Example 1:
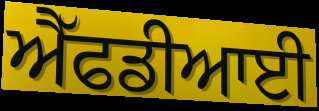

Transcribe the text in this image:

ਐੱਫਡੀਆਈ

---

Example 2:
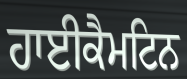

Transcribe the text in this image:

ਹਾਈਕੈਮਟਿਨ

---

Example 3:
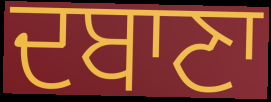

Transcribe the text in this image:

ਦਬਾਣਾ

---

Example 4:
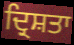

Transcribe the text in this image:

ਦ੍ਰਿਸ਼ਤਾ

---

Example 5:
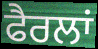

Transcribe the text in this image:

ਫੈਰਲਾਂ